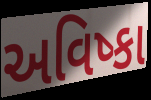
અવિષ્કા